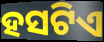
ହସଟିଏ